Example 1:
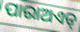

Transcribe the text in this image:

ପାରାଅଏଡ୍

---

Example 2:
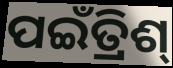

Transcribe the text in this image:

ପଇଁତ୍ରିଶ୍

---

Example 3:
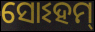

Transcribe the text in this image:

ସୋଽହମ୍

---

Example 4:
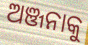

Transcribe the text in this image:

ଅଞ୍ଜନାକୁ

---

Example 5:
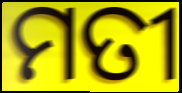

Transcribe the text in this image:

ମତୀ